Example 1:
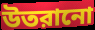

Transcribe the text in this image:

উতরানো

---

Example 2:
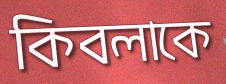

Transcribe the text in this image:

কিবলাকে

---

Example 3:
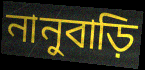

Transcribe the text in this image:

নানুবাড়ি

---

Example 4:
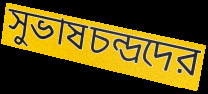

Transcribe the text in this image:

সুভাষচন্দ্রদের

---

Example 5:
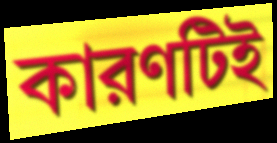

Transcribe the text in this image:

কারণটিই